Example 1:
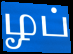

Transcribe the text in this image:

ழப்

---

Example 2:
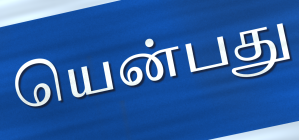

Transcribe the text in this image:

யென்பது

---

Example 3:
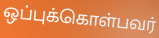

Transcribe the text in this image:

ஒப்புக்கொள்பவர்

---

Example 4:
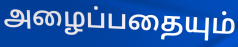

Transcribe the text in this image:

அழைப்பதையும்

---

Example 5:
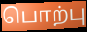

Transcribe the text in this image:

பொற்பு